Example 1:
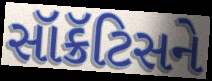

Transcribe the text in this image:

સૉક્રૅટિસને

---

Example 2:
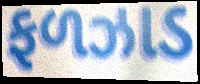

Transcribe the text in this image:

ફળઝાડ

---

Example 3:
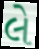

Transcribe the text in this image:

લે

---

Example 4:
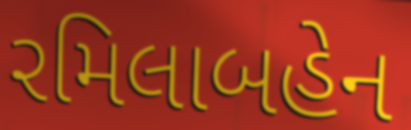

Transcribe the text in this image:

રમિલાબહેન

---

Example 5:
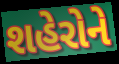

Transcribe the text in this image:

શહેરોને